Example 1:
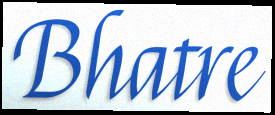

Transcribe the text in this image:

Bhatre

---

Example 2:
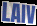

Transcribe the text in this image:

LAIV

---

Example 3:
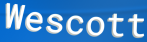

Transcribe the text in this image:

Wescott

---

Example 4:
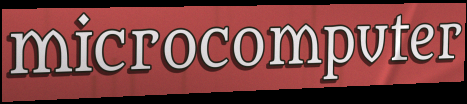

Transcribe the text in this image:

microcomputer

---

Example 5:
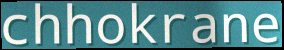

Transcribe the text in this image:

chhokrane